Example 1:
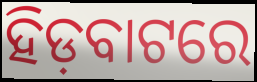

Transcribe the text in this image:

ହିଡ଼ବାଟରେ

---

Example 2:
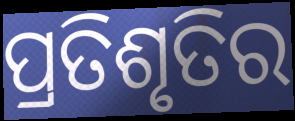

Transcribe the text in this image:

ପ୍ରତିଶୃତିର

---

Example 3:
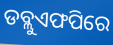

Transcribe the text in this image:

ଡବ୍ଲୁଏଫପିରେ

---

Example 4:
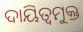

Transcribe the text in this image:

ଦାୟିତ୍ବମୁକ୍ତ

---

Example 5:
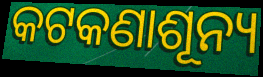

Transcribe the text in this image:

କଟକଣାଶୂନ୍ୟ